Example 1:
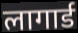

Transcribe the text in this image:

लागार्ड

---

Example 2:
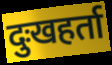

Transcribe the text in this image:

दुःखहर्ता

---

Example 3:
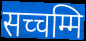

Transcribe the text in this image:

सच्चम्मि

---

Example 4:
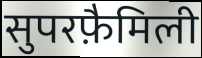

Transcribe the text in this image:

सुपरफ़ैमिली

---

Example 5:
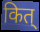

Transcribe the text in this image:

कित्